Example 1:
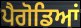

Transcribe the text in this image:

ਪੈਗੋਡਿਆਂ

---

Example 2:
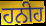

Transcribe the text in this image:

ਹਨੀਹ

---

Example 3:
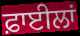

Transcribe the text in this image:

ਫ਼ਾਈਲਾਂ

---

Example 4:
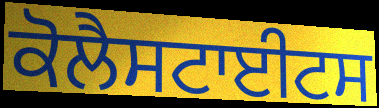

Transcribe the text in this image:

ਕੋਲੈਸਟਾਈਟਸ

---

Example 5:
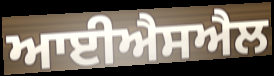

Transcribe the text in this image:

ਆਈਐਸਐਲ